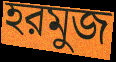
হরমুজ